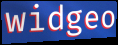
widgeo